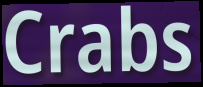
Crabs